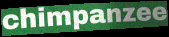
chimpanzee